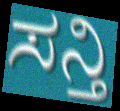
ಸನ್ತಿ